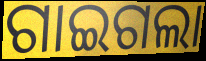
ଗାଇଗଲା